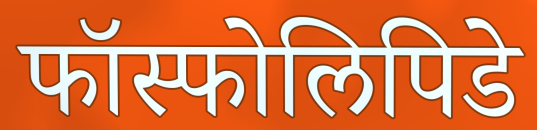
फॉस्फोलिपिडे